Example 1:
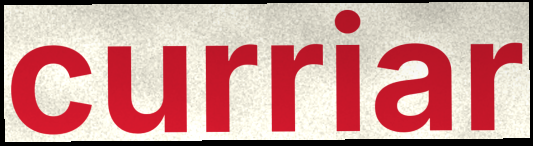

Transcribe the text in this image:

curriar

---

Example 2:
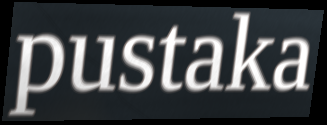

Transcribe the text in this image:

pustaka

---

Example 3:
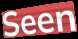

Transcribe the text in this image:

Seen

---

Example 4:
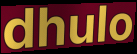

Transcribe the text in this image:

dhulo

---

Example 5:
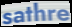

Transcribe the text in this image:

sathre